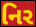
નિર